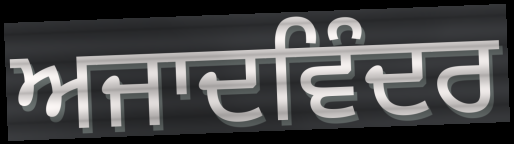
ਅਜਾਦਵਿੰਦਰ